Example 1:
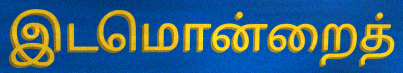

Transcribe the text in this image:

இடமொன்றைத்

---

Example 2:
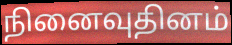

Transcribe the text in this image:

நினைவுதினம்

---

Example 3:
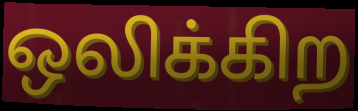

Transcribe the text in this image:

ஒலிக்கிற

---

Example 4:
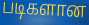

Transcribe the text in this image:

படிகளான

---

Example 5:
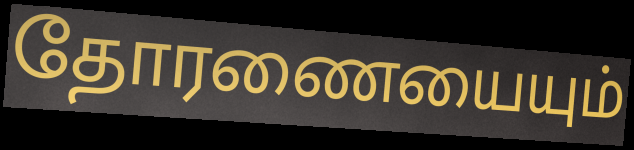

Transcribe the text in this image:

தோரணையையும்